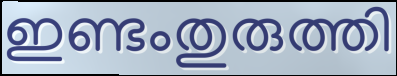
ഇണ്ടംതുരുത്തി